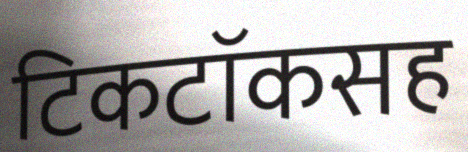
टिकटॉकसह